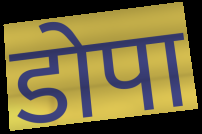
डोपा